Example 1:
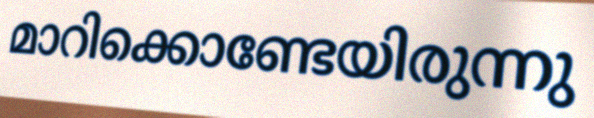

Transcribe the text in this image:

മാറിക്കൊണ്ടേയിരുന്നു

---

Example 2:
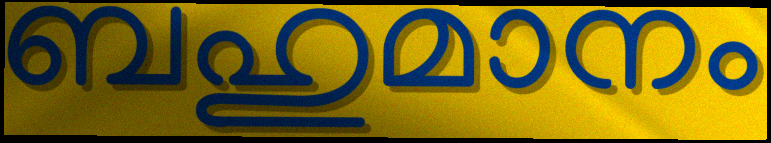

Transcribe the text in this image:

ബഹുമാനം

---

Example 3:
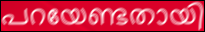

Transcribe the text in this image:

പറയേണ്ടതായി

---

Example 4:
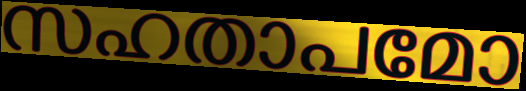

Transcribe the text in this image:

സഹതാപമോ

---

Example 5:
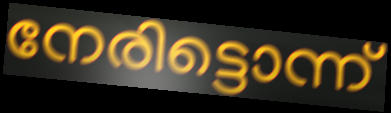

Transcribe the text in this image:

നേരിട്ടൊന്ന്